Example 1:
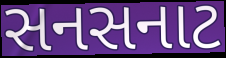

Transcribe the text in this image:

સનસનાટ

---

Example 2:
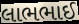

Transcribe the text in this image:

લાભભાઈ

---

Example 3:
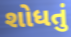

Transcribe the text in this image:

શોધતું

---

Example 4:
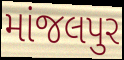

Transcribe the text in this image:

માંજલપુર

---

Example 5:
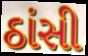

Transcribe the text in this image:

ઠાંસી